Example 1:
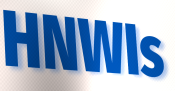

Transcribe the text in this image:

HNWIs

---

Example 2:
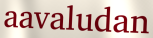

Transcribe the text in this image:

aavaludan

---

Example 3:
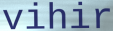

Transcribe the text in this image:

vihir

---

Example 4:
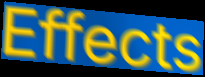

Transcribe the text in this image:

Effects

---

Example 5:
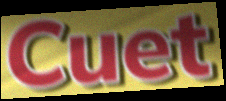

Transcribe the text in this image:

Cuet